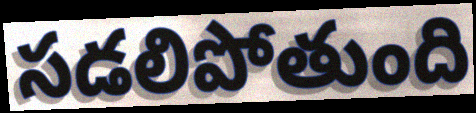
సడలిపోతుంది